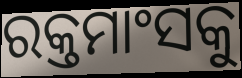
ରକ୍ତମାଂସକୁ